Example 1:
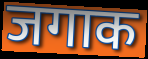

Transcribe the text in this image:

जगाक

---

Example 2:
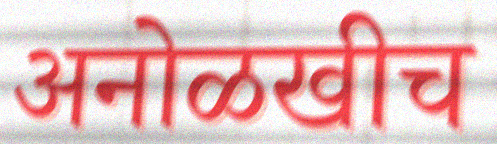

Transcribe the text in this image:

अनोळखीच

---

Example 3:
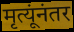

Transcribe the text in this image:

मृत्यूंनंतर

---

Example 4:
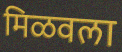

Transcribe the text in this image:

मिळवला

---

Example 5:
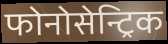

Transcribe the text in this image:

फोनोसेन्ट्रिक